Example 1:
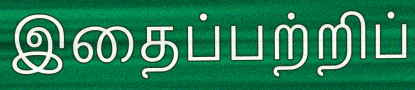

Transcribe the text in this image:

இதைப்பற்றிப்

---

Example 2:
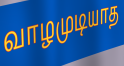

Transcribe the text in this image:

வாழமுடியாத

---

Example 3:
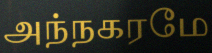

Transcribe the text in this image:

அந்நகரமே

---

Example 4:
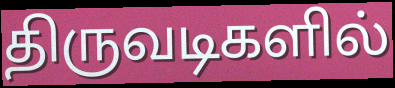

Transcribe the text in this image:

திருவடிகளில்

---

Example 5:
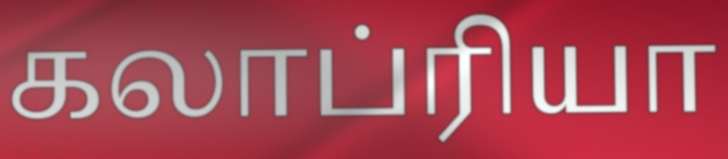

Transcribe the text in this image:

கலாப்ரியா